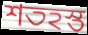
শতহস্ত